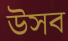
উসব